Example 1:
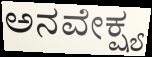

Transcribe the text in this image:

ಅನವೇಕ್ಷ್ಯ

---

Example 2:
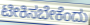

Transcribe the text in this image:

ಟೀಕಿಸಬೇಕೆಂದು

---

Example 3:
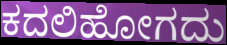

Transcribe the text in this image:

ಕದಲಿಹೋಗದು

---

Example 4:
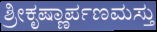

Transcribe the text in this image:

ಶ್ರೀಕೃಷ್ಣಾರ್ಪಣಮಸ್ತು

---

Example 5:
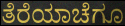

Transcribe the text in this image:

ತೆರೆಯಾಚೆಗೂ